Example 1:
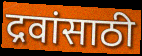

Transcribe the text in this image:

द्रवांसाठी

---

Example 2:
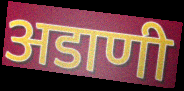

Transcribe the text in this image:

अडाणी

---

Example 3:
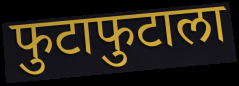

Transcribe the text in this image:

फुटाफुटाला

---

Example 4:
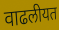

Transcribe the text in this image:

वाढलीयत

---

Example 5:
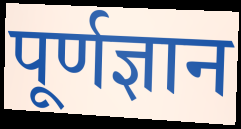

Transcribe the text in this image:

पूर्णज्ञान